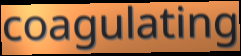
coagulating